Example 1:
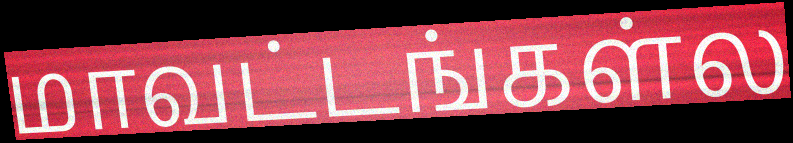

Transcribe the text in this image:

மாவட்டங்கள்ல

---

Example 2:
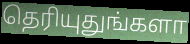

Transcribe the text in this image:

தெரியுதுங்களா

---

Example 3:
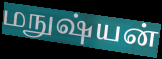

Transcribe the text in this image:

மநுஷ்யன்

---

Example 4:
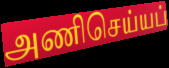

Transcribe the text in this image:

அணிசெய்யப்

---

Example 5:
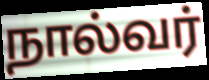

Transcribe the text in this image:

நால்வர்